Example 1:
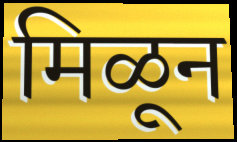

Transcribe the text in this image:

मिळून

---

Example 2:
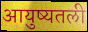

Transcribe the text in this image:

आयुष्यतली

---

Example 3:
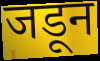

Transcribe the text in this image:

जडून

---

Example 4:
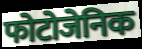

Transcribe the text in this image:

फोटोजेनिक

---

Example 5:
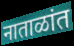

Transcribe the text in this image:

नाताळांत